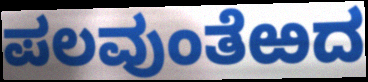
ಪಲವುಂತೆಱದ